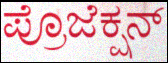
ಪ್ರೊಜೆಕ್ಷನ್